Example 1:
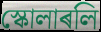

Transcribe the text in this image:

স্কোলাৰলি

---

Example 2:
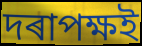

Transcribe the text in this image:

দৰাপক্ষই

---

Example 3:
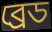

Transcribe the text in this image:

ব্ৰেড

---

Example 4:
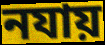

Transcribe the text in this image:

নযায়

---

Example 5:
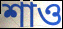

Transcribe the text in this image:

শাও